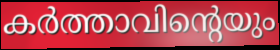
കർത്താവിന്റെയും